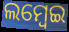
ଲମ୍ଵେଇ